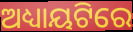
ଅଧ୍ୟାୟଟିରେ